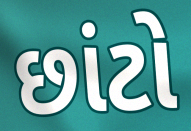
છાંટો